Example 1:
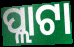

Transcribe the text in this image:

ପ୍ଲାଟା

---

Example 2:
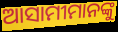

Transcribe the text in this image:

ଆସାମୀମାନଙ୍କୁ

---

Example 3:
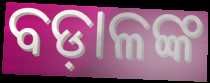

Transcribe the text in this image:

ବଡ଼ାଳଙ୍କ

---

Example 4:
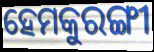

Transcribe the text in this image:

ହେମକୁରଙ୍ଗୀ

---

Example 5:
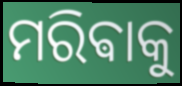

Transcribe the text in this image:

ମରିଵାକୁ